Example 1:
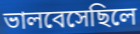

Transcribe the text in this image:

ভালবেসেছিলে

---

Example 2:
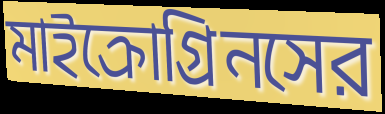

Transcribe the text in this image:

মাইক্রোগ্রিনসের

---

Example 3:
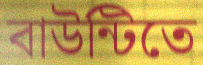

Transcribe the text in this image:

বাউন্টিতে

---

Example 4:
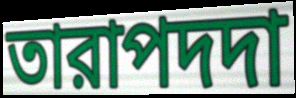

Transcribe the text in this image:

তারাপদদা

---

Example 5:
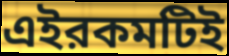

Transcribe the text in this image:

এইরকমটিই